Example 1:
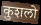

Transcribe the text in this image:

कुशलो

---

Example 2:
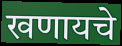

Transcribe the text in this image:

खणायचे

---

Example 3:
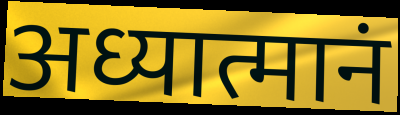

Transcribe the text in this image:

अध्यात्मानं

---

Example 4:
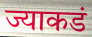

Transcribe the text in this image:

ज्याकडं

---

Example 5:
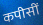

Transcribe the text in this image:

कपीसीं